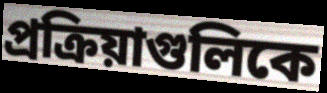
প্রক্রিয়াগুলিকে